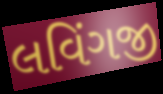
લવિંગજી